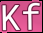
Kf